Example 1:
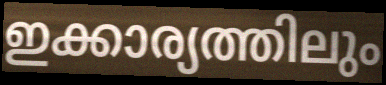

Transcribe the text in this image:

ഇക്കാര്യത്തിലും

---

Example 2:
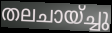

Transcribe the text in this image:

തലചായ്ച്ചു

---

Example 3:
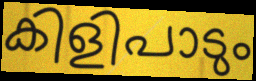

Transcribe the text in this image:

കിളിപാടും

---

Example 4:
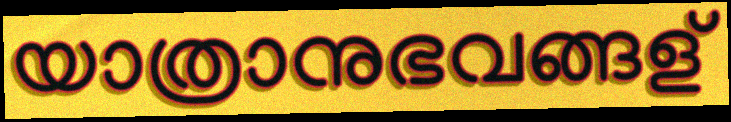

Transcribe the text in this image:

യാത്രാനുഭവങ്ങള്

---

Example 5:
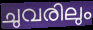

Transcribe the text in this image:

ചുവരിലും